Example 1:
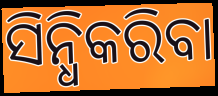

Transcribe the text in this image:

ସିନ୍ଧିକରିବା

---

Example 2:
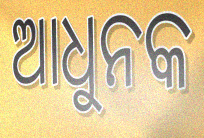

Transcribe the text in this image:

ଆଧୁନକ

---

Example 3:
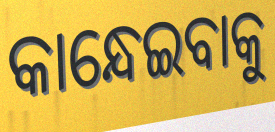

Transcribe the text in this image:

କାନ୍ଧେଇବାକୁ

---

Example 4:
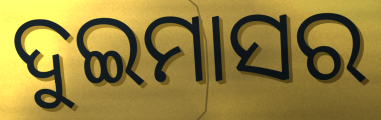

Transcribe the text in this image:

ଦୁଇମାସର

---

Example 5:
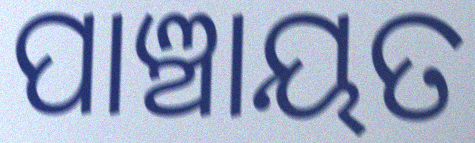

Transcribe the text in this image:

ପାଞ୍ଚାୟତ